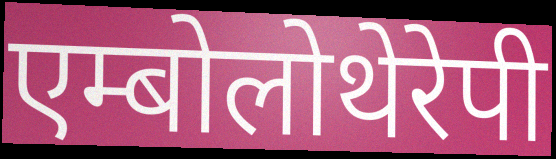
एम्बोलोथेरेपी